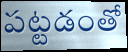
పట్టడంతో